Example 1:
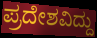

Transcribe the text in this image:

ಪ್ರದೇಶವಿದ್ದು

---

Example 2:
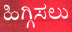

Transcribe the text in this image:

ಹಿಗ್ಗಿಸಲು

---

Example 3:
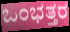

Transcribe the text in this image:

ಒಂಭತ್ತರ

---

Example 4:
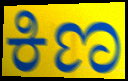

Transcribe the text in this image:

ಕಿಣ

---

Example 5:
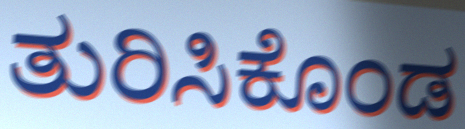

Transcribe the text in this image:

ತುರಿಸಿಕೊಂಡ